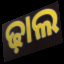
ଢ଼ାଲ